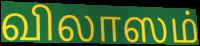
விலாஸம்